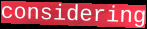
considering